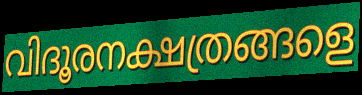
വിദൂരനക്ഷത്രങ്ങളെ